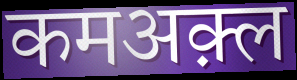
कमअक़्ल